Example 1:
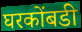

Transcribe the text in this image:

घरकोंबडी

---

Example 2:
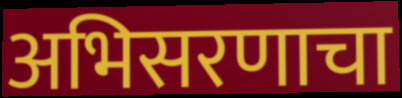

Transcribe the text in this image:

अभिसरणाचा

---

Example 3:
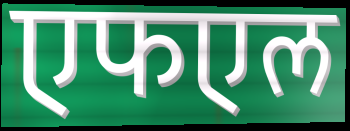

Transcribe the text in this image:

एफएल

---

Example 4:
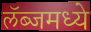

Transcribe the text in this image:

लॅब्जमध्ये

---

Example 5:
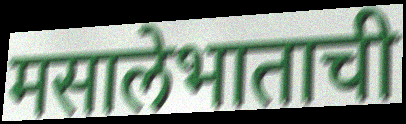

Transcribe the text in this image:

मसालेभाताची